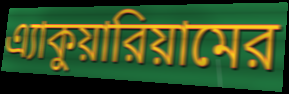
এ্যাকুয়ারিয়ামের